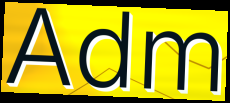
Adm